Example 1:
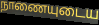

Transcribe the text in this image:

நாணையுடைய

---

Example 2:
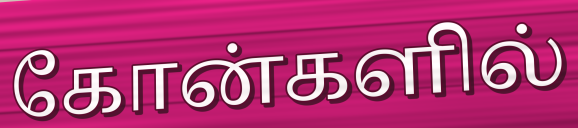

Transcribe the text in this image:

கோன்களில்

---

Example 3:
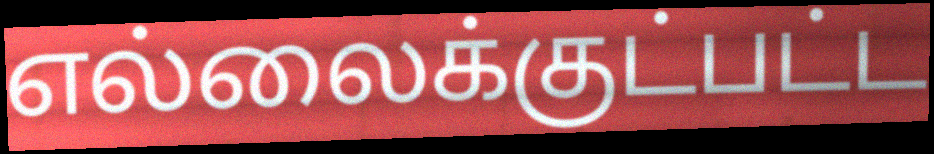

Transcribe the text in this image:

எல்லைக்குட்பட்ட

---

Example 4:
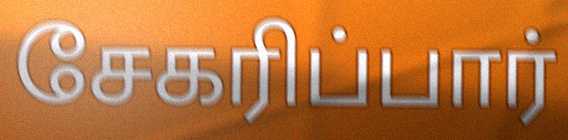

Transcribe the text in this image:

சேகரிப்பார்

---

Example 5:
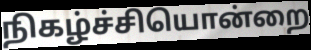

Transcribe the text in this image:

நிகழ்ச்சியொன்றை